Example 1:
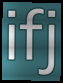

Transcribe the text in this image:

ifj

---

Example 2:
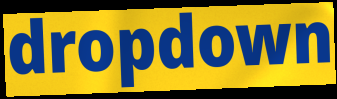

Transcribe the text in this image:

dropdown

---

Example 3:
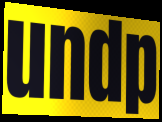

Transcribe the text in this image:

undp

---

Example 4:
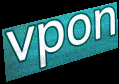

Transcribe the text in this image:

vpon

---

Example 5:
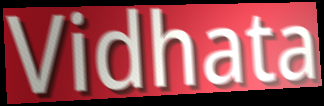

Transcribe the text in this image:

Vidhata